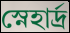
স্নেহার্দ্র